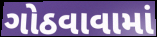
ગોઠવાવામાં